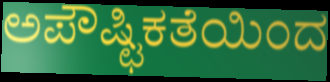
ಅಪೌಷ್ಟಿಕತೆಯಿಂದ